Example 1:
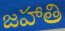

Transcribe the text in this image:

జహాతి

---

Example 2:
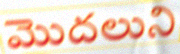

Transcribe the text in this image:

మొదలుని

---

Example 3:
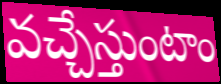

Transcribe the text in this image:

వచ్చేస్తుంటాం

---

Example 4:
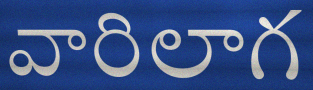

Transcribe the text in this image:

వారిలాగ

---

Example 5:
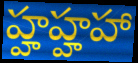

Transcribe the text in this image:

హ్హహ్హహా